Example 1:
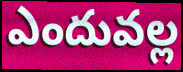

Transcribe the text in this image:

ఎందువల్ల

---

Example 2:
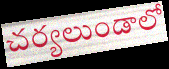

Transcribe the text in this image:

చర్యలుండాలో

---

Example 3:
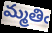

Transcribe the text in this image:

మ్మతిఁ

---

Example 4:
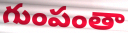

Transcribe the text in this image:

గుంపంతా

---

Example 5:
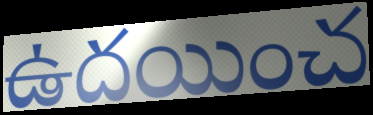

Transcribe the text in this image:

ఉదయించ